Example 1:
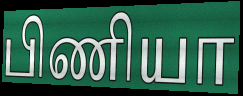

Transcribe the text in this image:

பிணியா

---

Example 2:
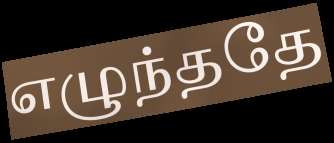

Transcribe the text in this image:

எழுந்ததே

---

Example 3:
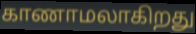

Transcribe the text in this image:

காணாமலாகிறது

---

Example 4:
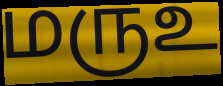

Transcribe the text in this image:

மருஉ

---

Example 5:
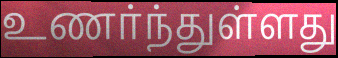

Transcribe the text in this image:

உணர்ந்துள்ளது